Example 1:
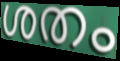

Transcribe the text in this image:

ശതം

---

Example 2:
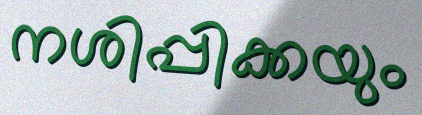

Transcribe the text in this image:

നശിപ്പിക്കയും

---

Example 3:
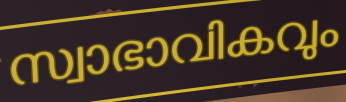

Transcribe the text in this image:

സ്വാഭാവികവും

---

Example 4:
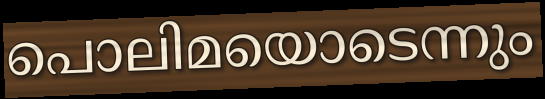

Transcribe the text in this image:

പൊലിമയൊടെന്നും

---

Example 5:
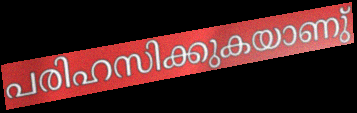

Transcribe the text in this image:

പരിഹസിക്കുകയാണു്